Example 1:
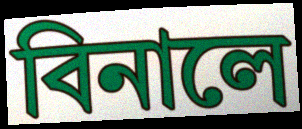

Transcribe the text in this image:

বিনালে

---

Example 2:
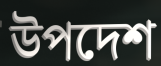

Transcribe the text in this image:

উপদেশ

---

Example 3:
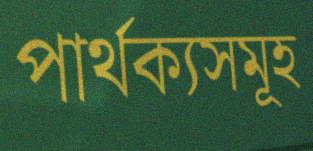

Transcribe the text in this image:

পাৰ্থক্যসমূহ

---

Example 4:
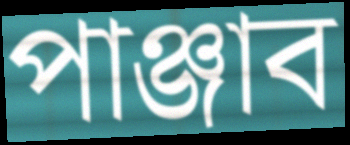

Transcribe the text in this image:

পাঞ্জাব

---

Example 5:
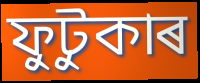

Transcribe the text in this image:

ফুটুকাৰ